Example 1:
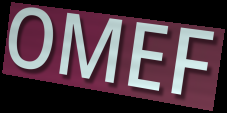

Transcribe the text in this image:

OMEF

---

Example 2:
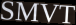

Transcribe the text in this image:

SMVT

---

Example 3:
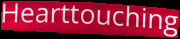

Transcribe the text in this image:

Hearttouching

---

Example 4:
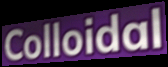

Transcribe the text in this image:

Colloidal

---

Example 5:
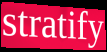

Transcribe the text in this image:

stratify